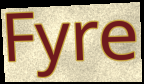
Fyre